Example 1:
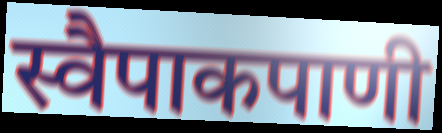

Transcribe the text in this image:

स्वैपाकपाणी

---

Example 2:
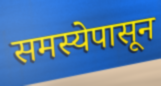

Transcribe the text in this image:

समस्येपासून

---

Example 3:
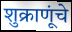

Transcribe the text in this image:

शुक्राणूंचे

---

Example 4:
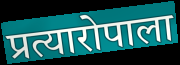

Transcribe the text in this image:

प्रत्यारोपाला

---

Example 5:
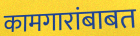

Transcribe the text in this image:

कामगारांबाबत